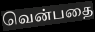
வென்பதை